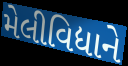
મેલીવિદ્યાને